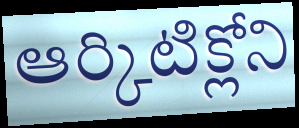
ఆర్కిటిక్లోని